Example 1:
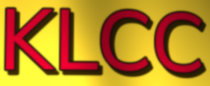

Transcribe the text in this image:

KLCC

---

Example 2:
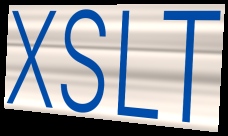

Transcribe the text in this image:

XSLT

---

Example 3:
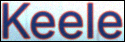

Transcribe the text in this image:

Keele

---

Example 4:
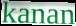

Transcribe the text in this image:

kanan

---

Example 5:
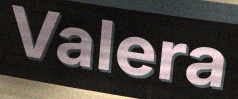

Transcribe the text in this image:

Valera